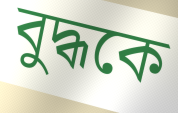
বুদ্ধকে